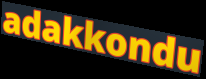
adakkondu